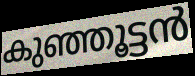
കുഞ്ഞൂട്ടൻ